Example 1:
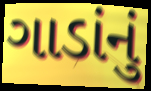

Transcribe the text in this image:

ગાડાંનું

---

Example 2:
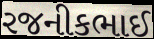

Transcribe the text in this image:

રજનીકભાઈ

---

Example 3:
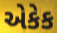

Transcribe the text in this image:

એકેક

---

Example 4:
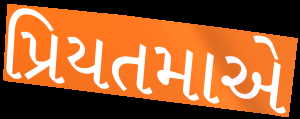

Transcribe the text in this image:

પ્રિયતમાએ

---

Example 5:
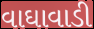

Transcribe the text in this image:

વાઘાવાડી